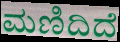
ಮಣಿದಿದೆ